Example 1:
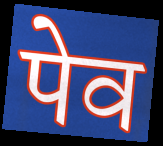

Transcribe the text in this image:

पेव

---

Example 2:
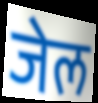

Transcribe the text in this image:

जेल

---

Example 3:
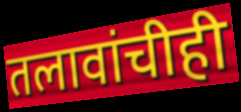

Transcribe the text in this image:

तलावांचीही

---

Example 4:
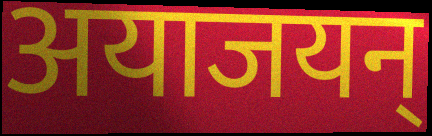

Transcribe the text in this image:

अयाजयन्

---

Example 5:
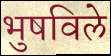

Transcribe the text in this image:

भुषविले